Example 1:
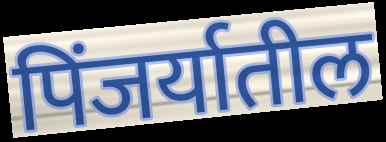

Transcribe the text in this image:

पिंजर्यातील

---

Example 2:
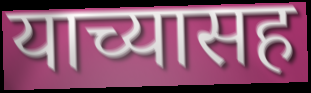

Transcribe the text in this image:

याच्यासह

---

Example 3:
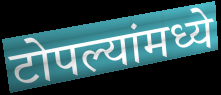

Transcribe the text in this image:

टोपल्यांमध्ये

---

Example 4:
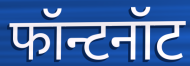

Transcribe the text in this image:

फॉन्टनॉट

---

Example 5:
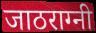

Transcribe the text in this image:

जाठराग्नी